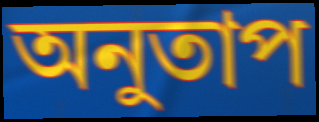
অনুতাপ